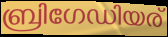
ബ്രിഗേഡിയര്